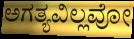
ಅಗತ್ಯವಿಲ್ಲವೋ